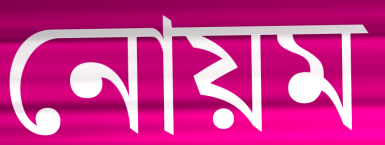
নোয়ম